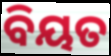
ବିୟତ